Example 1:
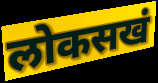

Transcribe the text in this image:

लोकसखं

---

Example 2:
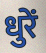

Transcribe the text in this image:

धुरें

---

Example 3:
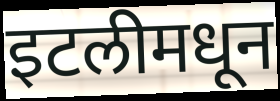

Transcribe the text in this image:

इटलीमधून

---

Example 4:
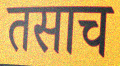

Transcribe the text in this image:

तसाच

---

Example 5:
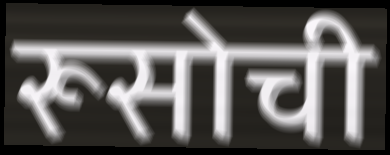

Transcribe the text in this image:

रूसोची